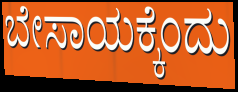
ಬೇಸಾಯಕ್ಕೆಂದು